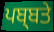
ਪਬ੍ਬਤੇ